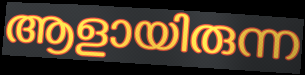
ആളായിരുന്ന